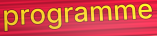
programme